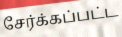
சேர்க்கப்பட்ட